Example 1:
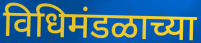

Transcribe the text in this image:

विधिमंडळाच्या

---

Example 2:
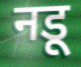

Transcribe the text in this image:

नडू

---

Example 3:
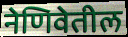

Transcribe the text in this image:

नेणिवेतील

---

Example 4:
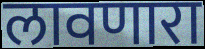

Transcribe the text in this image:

लावणारा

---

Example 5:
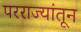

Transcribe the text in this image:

परराज्यांतून